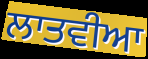
ਲਾਤਵੀਆ